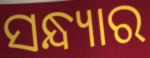
ସନ୍ଧ୍ୟାର